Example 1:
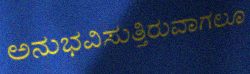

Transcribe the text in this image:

ಅನುಭವಿಸುತ್ತಿರುವಾಗಲೂ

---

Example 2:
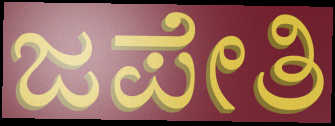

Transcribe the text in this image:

ಜಪೇತಿ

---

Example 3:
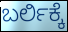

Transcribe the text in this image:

ಬರ್ಲಿಕ್ಕೆ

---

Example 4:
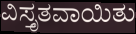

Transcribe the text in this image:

ವಿಸ್ತೃತವಾಯಿತು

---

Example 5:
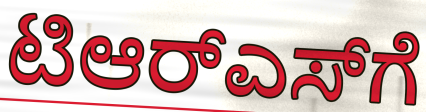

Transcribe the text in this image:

ಟಿಆರ್‌ಎಸ್‌ಗೆ